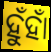
ହୁଁହାଁ